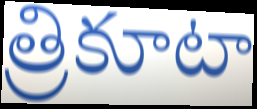
త్రికూటా